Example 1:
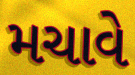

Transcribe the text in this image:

મચાવે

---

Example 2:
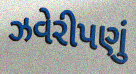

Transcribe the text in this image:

ઝવેરીપણું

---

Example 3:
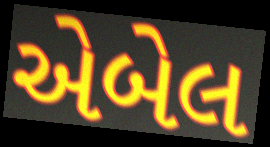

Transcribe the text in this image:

એબેલ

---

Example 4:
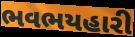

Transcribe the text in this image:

ભવભયહારી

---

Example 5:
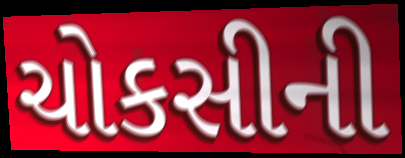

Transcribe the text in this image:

ચોકસીની